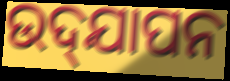
ଉଦ୍‌ଯାପନ